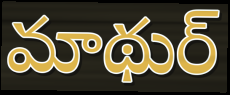
మాథుర్